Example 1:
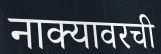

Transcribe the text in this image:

नाक्यावरची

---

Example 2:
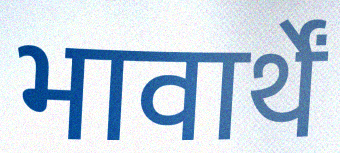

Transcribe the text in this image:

भावार्थें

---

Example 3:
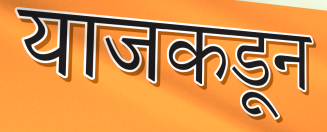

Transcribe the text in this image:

याजकडून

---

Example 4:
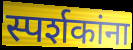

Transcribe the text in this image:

स्पर्शकांना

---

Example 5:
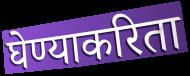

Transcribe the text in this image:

घेण्याकरिता